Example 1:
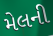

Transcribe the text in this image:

મેલની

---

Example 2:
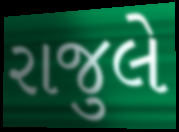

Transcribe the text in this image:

રાજુલે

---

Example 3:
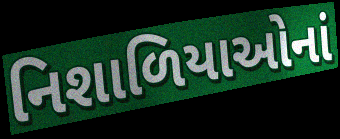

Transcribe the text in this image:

નિશાળિયાઓનાં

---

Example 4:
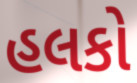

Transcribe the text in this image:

હલકો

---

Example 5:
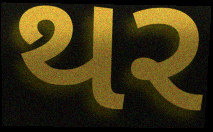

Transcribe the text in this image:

થર